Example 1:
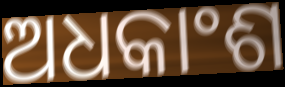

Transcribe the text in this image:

ଅଧକାଂଶ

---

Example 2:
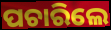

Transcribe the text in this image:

ପଚାରିଲେ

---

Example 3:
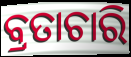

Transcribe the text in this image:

ବ୍ରତାଚାରି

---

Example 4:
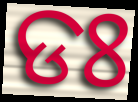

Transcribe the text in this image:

ଡଃ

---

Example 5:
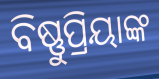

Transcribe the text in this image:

ବିଷ୍ଣୁପ୍ରିୟାଙ୍କ